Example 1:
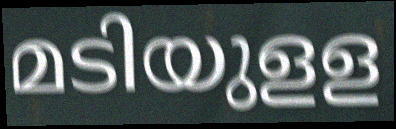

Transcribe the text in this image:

മടിയുളള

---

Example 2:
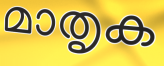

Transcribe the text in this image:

മാതൃക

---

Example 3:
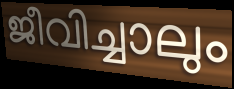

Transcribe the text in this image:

ജീവിച്ചാലും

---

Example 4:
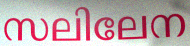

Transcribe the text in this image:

സലിലേന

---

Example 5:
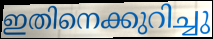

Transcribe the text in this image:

ഇതിനെക്കുറിച്ചു